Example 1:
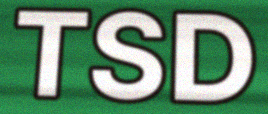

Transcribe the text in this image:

TSD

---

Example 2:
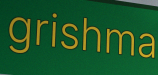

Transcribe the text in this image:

grishma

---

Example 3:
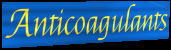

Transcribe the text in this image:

Anticoagulants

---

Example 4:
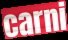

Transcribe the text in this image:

carni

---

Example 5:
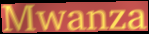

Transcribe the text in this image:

Mwanza